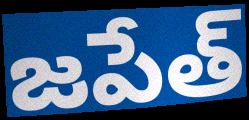
జపేత్